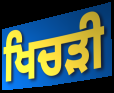
ਖਿਚੜੀ